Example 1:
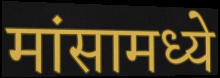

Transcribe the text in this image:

मांसामध्ये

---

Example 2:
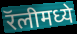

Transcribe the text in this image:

रॅलीमध्ये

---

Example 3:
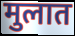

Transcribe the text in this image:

मुलात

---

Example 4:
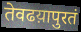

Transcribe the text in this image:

तेवढय़ापुरतं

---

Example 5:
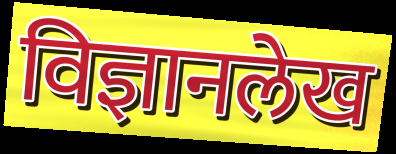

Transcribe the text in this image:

विज्ञानलेख